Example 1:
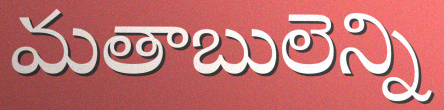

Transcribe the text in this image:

మతాబులెన్ని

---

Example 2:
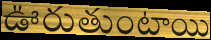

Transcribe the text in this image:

ఊరుతుంటాయి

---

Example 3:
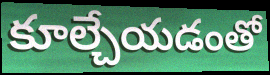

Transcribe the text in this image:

కూల్చేయడంతో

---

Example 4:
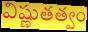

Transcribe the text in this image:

విష్ణుతత్వం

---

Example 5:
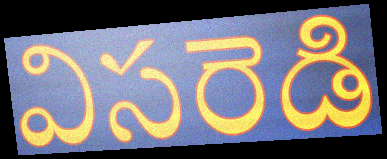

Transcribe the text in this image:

విసరెడి